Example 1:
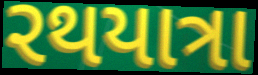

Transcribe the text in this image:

રથયાત્રા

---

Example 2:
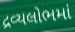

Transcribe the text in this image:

દ્રવ્યલોભમાં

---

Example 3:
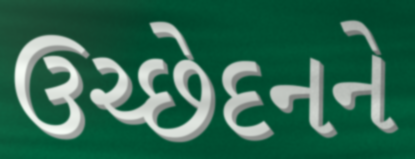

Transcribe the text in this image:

ઉચ્છેદનને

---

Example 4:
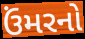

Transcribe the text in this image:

ઉંમરનો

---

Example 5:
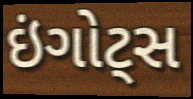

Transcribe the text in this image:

ઇંગોટ્સ